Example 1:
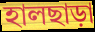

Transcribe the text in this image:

হালছাড়া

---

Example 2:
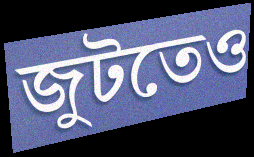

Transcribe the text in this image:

জুটতেও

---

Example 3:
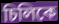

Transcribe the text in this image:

চিলিকে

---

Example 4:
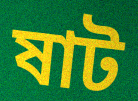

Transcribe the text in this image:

ষাট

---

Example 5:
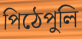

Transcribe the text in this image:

পিঠেপুলি